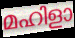
മഹിളാ